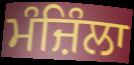
ਮੰਜ਼ਿੰਲਾ